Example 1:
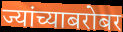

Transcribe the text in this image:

ज्यांच्याबरोबर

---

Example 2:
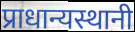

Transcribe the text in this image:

प्राधान्यस्थानी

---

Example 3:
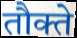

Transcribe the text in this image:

तौक्ते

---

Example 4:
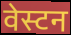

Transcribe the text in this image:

वेस्टन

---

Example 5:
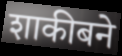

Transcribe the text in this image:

शाकीबने